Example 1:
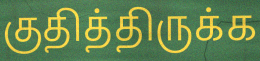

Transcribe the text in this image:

குதித்திருக்க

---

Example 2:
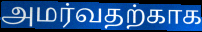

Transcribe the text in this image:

அமர்வதற்காக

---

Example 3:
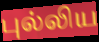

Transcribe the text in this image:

புல்லிய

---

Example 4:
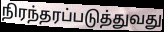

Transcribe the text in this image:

நிரந்தரப்படுத்துவது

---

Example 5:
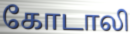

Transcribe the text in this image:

கோடாலி